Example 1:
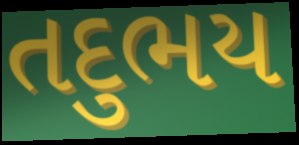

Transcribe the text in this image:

તદુભય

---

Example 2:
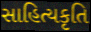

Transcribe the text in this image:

સાહિત્યકૃતિ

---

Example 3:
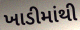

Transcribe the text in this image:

ખાડીમાંથી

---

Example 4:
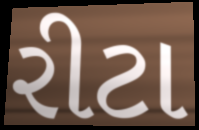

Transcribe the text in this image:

રીટા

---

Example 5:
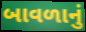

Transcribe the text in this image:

બાવળાનું